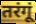
तरंगूं